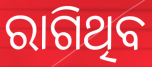
ରାଗିଥିବ